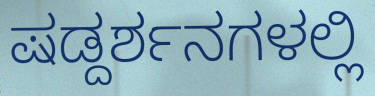
ಷಡ್ದರ್ಶನಗಳಲ್ಲಿ